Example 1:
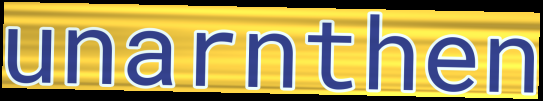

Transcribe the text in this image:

unarnthen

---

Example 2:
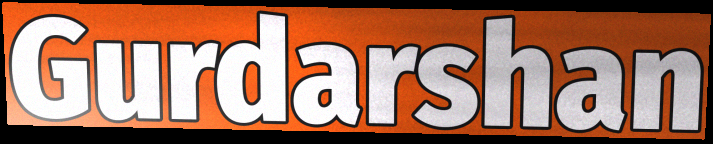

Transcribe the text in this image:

Gurdarshan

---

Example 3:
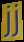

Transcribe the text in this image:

jj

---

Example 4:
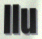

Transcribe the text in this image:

llu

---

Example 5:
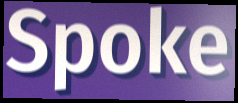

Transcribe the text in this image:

Spoke